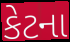
કેટના